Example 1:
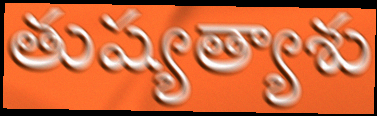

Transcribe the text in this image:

తుష్యత్యాశు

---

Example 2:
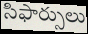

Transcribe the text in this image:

సిఫార్సులు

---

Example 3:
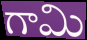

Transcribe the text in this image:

గామి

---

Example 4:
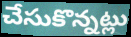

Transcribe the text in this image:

చేసుకొన్నట్లు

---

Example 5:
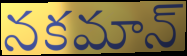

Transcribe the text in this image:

నకమాన్